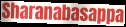
Sharanabasappa